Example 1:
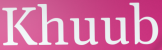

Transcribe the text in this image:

Khuub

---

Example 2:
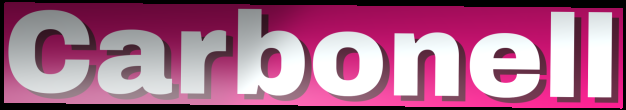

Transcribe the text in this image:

Carbonell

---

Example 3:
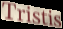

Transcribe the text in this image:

Tristis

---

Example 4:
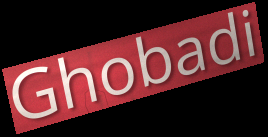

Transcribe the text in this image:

Ghobadi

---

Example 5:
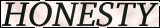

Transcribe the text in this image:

HONESTY